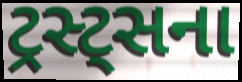
ટ્રસ્ટ્સના